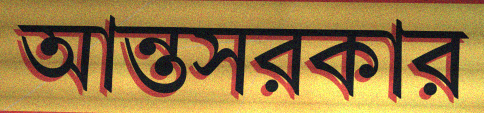
আন্তসরকার